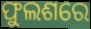
ଫୁଲଶରେ